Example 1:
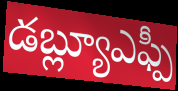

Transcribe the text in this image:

డబ్ల్యూఎఫ్పీ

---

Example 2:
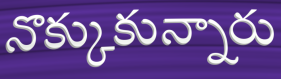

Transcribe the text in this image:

నొక్కుకున్నారు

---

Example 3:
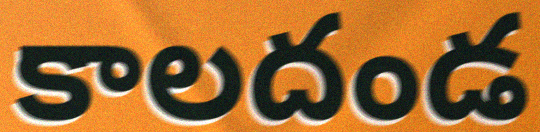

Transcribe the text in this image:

కాలదండ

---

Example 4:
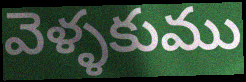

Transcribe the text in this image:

వెళ్ళకుము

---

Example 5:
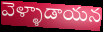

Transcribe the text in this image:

వెళ్ళాడాయన